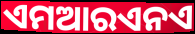
ଏମଆରଏନଏ